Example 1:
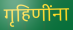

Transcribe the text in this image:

गृहिणींना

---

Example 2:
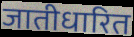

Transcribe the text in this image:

जातीधारित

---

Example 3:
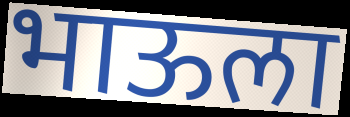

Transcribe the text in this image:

भाऊला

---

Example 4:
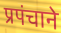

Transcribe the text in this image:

प्रपंचाने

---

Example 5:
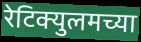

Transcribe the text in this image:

रेटिक्युलमच्या